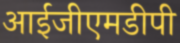
आईजीएमडीपी